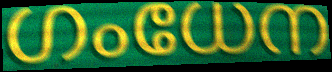
ഗംധേന